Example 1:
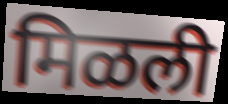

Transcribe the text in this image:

मिळली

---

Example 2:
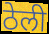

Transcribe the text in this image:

ठेली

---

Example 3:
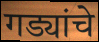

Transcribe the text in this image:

गड्यांचे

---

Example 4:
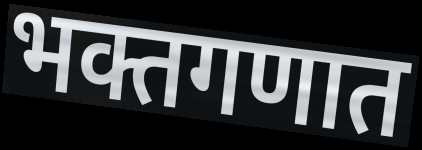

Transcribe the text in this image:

भक्तगणात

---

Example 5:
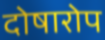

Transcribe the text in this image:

दोषारोप